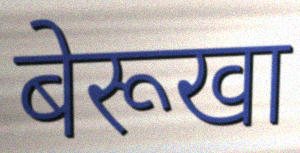
बेरूखा